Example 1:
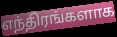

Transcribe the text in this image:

எந்திரங்களாக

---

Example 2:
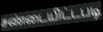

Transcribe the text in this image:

சண்டையிட்டபடி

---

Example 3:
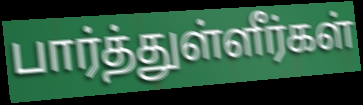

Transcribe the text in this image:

பார்த்துள்ளீர்கள்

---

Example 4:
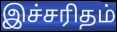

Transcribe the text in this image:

இச்சரிதம்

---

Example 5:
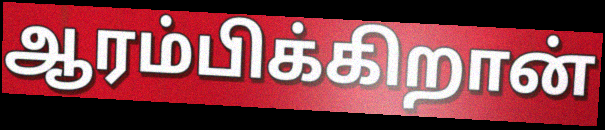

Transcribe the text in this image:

ஆரம்பிக்கிறான்